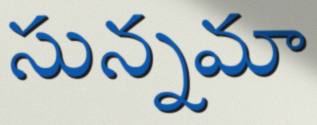
సున్నమా